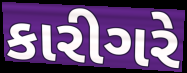
કારીગરે